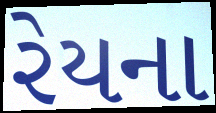
રેયના